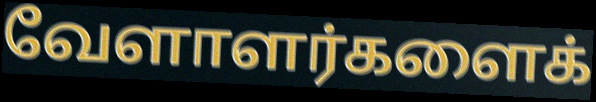
வேளாளர்களைக்